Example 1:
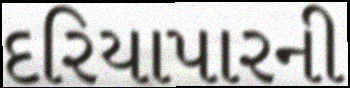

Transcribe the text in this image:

દરિયાપારની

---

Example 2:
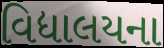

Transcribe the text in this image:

વિદ્યાલયના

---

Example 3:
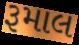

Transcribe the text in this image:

રૂમાલ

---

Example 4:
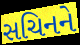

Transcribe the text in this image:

સચિનને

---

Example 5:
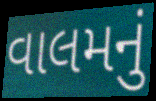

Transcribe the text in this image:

વાલમનું